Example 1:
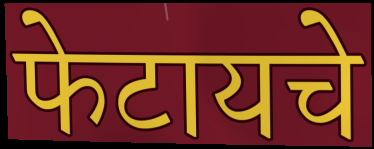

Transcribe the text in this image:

फेटायचे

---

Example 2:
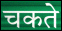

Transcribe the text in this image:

चकते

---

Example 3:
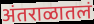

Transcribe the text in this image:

अंतराळातलं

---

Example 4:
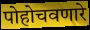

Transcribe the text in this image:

पोहोचवणारे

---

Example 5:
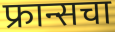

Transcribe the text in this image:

फ्रान्सचा